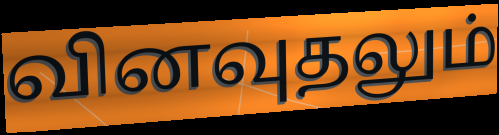
வினவுதலும்